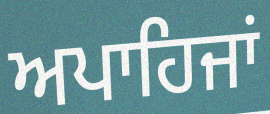
ਅਪਾਹਿਜਾਂ